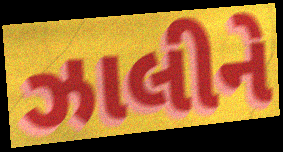
ઝાલીને